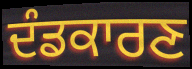
ਦੰਡਕਾਰਣ